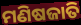
ମଣିଷଜାତି